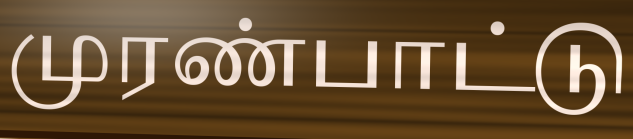
முரண்பாட்டு